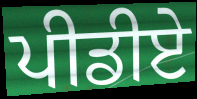
ਪੀਡੀਏ